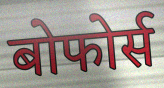
बोफोर्स